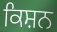
ਕਿਸ਼ਨ